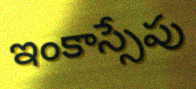
ఇంకాస్సేపు